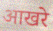
आखरे